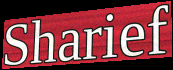
Sharief